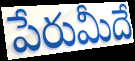
పేరుమీదే